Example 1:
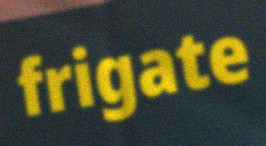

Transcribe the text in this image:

frigate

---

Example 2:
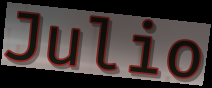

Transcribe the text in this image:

Julio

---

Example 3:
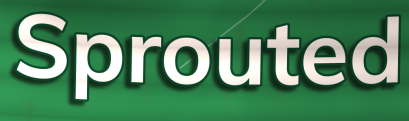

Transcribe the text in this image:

Sprouted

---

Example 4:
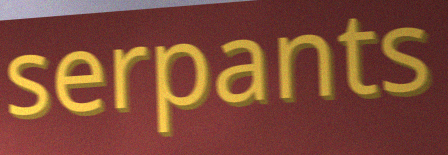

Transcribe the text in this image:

serpants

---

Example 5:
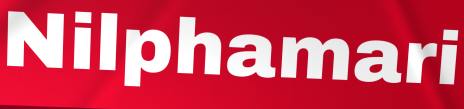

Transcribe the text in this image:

Nilphamari